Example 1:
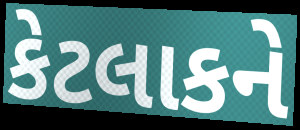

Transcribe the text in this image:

કેટલાકને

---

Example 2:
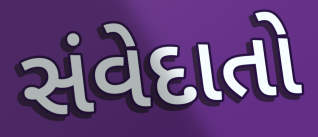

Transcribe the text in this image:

સંવેદાતો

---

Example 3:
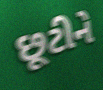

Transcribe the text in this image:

છૂટીને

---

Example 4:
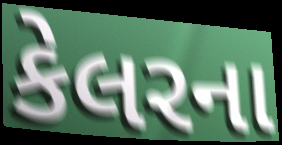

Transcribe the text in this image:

કેલરના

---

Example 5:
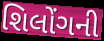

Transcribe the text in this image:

શિલોંગની